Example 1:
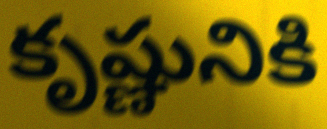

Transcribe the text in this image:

కృష్ణునికి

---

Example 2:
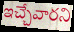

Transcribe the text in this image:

ఇచ్చేవారని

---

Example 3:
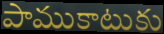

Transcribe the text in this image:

పాముకాటుకు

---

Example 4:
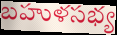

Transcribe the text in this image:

బహుళసభ్య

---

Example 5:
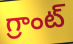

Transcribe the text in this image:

గ్రాంట్